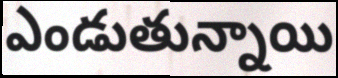
ఎండుతున్నాయి